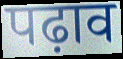
पढ़ाव